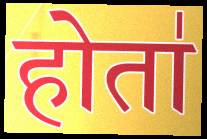
होता॑